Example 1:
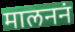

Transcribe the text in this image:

मालननं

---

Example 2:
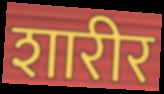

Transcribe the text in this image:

शारीर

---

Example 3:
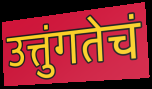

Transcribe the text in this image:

उत्तुंगतेचं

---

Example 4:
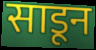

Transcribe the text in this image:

साडून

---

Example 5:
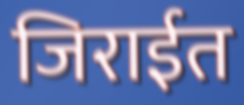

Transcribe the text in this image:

जिराईत